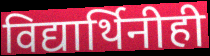
विद्यार्थिनीही